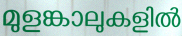
മുളങ്കാലുകളിൽ